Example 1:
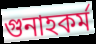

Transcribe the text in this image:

গুনাহকর্ম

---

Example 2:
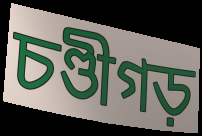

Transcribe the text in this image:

চণ্ডীগড়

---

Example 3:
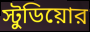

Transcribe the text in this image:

স্টুডিয়োর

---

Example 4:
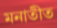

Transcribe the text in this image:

মনাতীত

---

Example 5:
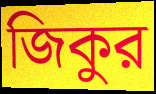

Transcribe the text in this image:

জিকুর